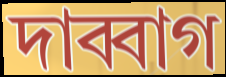
দাব্বাগ